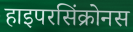
हाइपरसिंक्रोनस